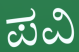
ಪವಿ